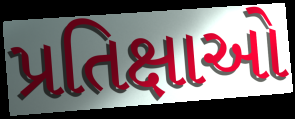
પ્રતિક્ષાઓ